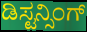
ಡಿಸ್ಟನ್ಸಿಂಗ್